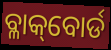
ବ୍ଳାକ୍‌ବୋର୍ଡ